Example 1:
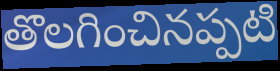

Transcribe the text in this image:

తొలగించినప్పటి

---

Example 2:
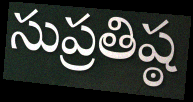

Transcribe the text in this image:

సుప్రతిష్ఠ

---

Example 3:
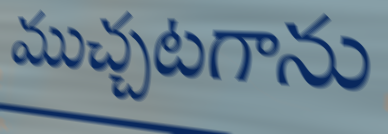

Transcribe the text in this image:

ముచ్చటగాను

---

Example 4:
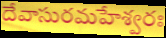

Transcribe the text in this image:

దేవాసురమహేశ్వరః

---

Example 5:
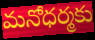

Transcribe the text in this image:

మనోధర్మకు